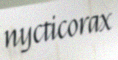
nycticorax